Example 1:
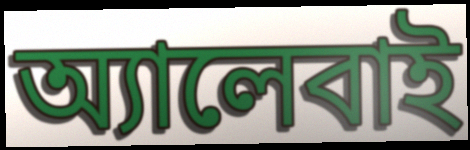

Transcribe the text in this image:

অ্যালেবাই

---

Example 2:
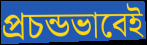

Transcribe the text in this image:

প্রচন্ডভাবেই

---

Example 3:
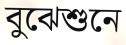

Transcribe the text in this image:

বুঝেশুনে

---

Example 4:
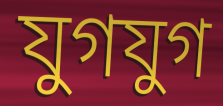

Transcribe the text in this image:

যুগযুগ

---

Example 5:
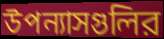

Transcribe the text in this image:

উপন্যাসগুলির